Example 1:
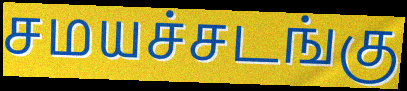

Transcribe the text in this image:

சமயச்சடங்கு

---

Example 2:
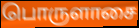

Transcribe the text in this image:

பொருளாசை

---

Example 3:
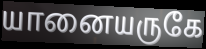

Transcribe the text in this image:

யானையருகே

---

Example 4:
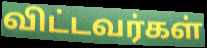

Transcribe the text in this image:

விட்டவர்கள்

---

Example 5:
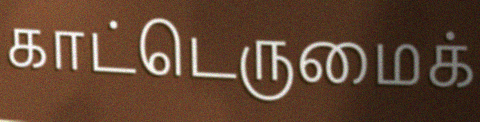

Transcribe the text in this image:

காட்டெருமைக்